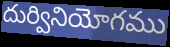
దుర్వినియోగము